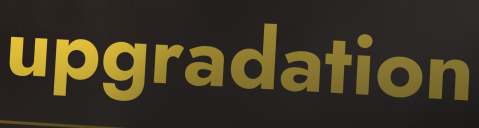
upgradation